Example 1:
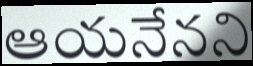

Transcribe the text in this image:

ఆయనేనని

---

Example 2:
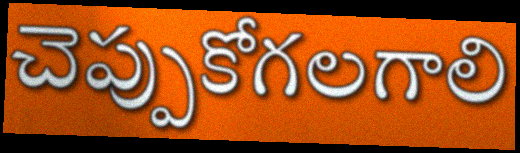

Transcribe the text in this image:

చెప్పుకోగలగాలి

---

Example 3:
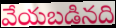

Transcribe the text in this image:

వేయబడినది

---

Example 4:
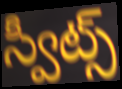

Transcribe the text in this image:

స్వీట్స్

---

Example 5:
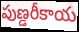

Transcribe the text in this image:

పుణ్డరీకాయ